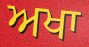
ਅਖਾ